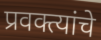
प्रवक्त्यांचे